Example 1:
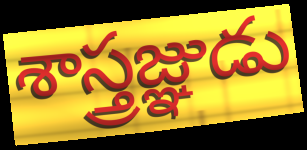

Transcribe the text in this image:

శాస్త్రజ్ఞుడు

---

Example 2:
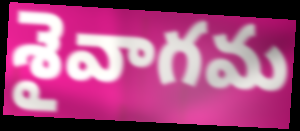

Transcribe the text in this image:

శైవాగమ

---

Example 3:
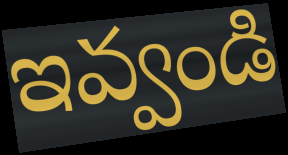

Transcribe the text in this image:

ఇవ్వండి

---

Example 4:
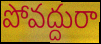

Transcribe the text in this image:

పోవద్దురా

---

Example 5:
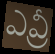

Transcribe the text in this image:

ఎవ్రీ